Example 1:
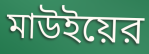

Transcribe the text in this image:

মাউইয়ের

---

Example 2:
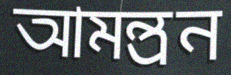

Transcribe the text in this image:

আমন্ত্রন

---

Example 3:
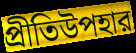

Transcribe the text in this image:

প্রীতিউপহার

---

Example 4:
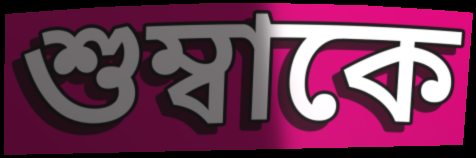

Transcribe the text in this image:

শুম্বাকে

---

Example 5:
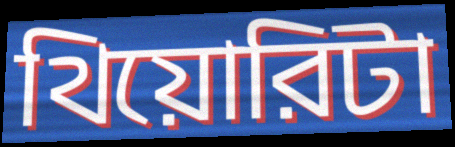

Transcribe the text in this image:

থিয়োরিটা